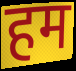
हम